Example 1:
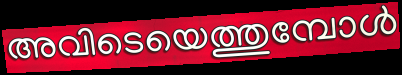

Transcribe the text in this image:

അവിടെയെത്തുമ്പോൾ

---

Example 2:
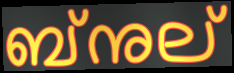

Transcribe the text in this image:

ബ്നുല്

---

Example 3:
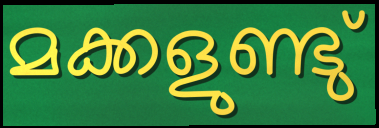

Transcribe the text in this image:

മക്കളുണ്ടു്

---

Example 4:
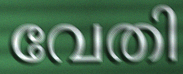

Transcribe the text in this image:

വേതി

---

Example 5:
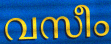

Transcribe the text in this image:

വസീം